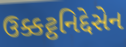
ઉક્કટ્ઠનિદ્દેસેન